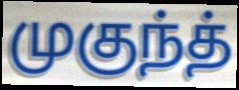
முகுந்த்